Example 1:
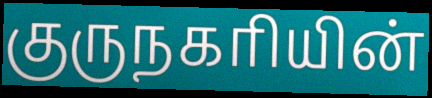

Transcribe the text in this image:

குருநகரியின்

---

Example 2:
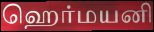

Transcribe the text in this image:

ஹெர்மயனி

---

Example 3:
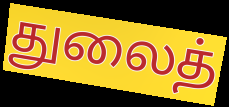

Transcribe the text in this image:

துலைத்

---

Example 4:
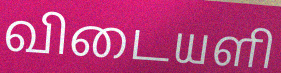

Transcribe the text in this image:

விடையளி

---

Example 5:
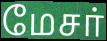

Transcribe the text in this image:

மேசர்